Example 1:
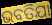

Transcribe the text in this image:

ଭବତିଯା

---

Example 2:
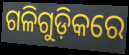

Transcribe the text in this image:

ଗଳିଗୁଡ଼ିକରେ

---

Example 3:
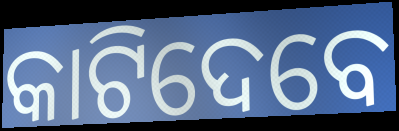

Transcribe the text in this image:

କାଟିଦେବେ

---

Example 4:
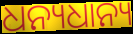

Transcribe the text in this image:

ଧନ୍ୟଧାନ୍ୟ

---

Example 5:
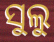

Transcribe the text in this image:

ସୁଲୁ